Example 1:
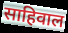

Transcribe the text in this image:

साहिवाल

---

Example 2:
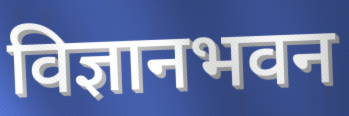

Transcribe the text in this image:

विज्ञानभवन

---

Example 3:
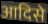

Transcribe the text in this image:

आदिसे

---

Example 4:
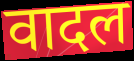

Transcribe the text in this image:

वादल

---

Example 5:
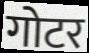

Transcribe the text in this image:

गोटर